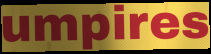
umpires